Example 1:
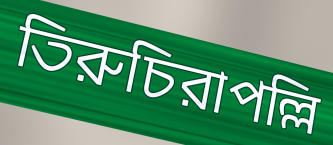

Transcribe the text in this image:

তিরুচিরাপল্লি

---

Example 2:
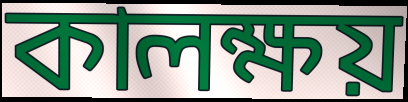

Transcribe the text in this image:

কালক্ষয়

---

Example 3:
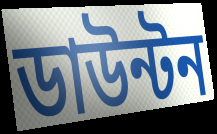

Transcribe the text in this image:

ডাউন্টন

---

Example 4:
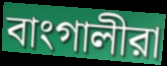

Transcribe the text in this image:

বাংগালীরা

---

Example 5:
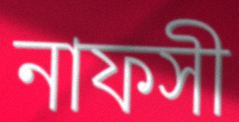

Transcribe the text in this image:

নাফসী